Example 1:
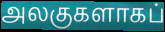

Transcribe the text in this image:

அலகுகளாகப்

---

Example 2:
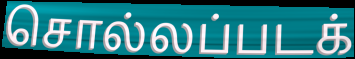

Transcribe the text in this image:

சொல்லப்படக்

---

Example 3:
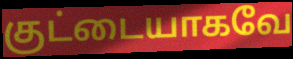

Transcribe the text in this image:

குட்டையாகவே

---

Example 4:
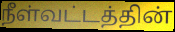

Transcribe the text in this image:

நீள்வட்டத்தின்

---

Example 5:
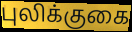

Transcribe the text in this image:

புலிக்குகை